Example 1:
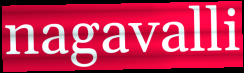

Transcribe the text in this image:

nagavalli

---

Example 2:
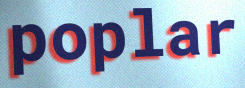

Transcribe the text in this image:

poplar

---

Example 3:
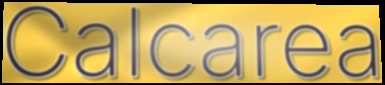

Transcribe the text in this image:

Calcarea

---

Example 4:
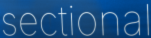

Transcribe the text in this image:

sectional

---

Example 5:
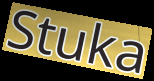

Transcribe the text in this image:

Stuka